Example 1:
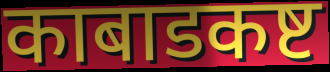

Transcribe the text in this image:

काबाडकष्ट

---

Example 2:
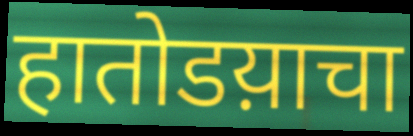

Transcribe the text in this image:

हातोडय़ाचा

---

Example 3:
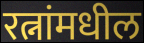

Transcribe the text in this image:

रत्नांमधील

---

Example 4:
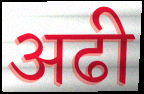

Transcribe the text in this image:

अढी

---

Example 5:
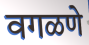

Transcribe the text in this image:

वगळणे